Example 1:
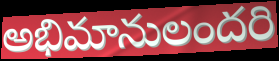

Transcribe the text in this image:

అభిమానులందరి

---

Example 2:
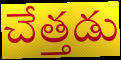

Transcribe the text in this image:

చేత్తడు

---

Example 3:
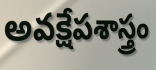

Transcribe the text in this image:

అవక్షేపశాస్త్రం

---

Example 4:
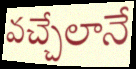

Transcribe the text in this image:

వచ్చేలానే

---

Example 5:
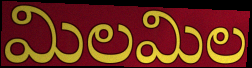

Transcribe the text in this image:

మిలమిల